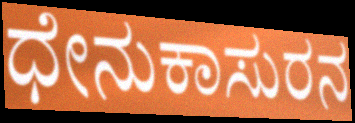
ಧೇನುಕಾಸುರನ